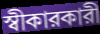
স্বীকারকারী